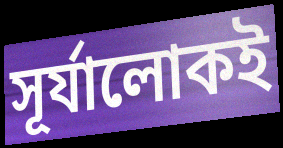
সূর্যালোকই